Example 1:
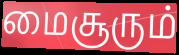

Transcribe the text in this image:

மைசூரும்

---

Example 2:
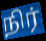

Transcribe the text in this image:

நிர்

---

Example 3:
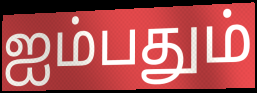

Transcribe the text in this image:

ஐம்பதும்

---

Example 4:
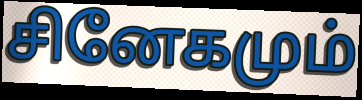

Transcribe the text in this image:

சினேகமும்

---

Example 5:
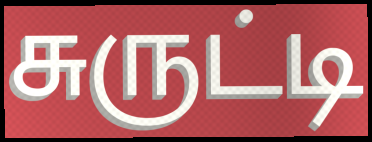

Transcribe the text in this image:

சுருட்டி